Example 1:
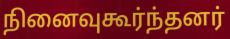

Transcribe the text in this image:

நினைவுகூர்ந்தனர்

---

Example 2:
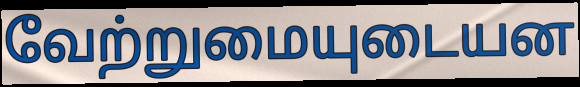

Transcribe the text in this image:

வேற்றுமையுடையன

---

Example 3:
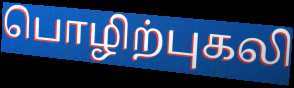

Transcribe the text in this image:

பொழிற்புகலி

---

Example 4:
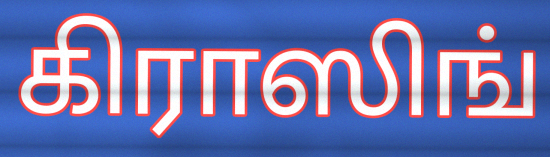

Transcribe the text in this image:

கிராஸிங்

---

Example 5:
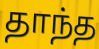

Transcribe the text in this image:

தாந்த